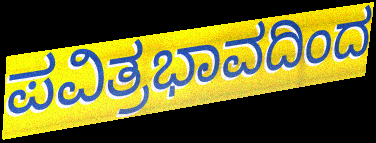
ಪವಿತ್ರಭಾವದಿಂದ